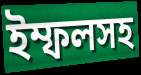
ইম্ফলসহ